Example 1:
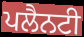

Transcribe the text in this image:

ਪਲੈਨਟੀ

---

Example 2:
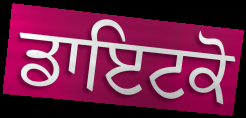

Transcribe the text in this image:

ਡਾਇਟਕੋ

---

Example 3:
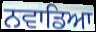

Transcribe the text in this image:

ਨਵਾਡਿਆ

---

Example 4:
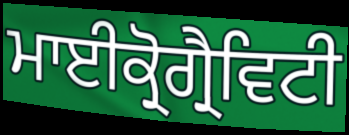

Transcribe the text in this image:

ਮਾਈਕ੍ਰੋਗ੍ਰੈਵਿਟੀ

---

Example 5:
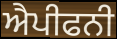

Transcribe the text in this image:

ਐਪੀਫਨੀ